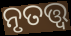
ନୃତତ୍ତ୍ୱ